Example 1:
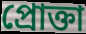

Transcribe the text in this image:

প্রোক্তা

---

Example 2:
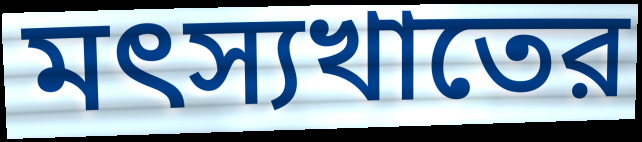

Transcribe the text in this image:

মৎস্যখাতের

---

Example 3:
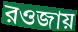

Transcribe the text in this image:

রওজায়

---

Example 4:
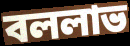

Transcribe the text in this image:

বললাভ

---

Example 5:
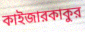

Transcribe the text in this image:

কাইজারকাকুর